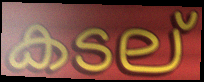
കടല്